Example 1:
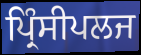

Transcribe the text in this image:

ਪ੍ਰਿੰਸੀਪਲਜ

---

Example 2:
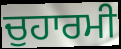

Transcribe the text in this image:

ਚੁਹਾਰਮੀ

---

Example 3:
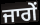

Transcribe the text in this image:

ਜਾਗੇਂ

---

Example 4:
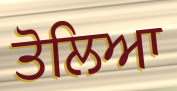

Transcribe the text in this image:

ਤੋਲਿਆ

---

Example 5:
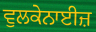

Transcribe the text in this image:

ਵੁਲਕੇਨਾਈਜ਼